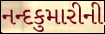
નન્દકુમારીની